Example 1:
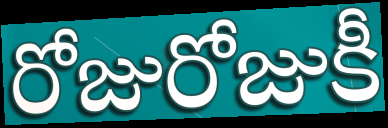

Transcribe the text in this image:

రోజురోజుకీ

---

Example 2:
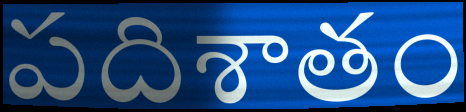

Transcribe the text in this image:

పదిశాతం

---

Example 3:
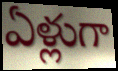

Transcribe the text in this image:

ఏళ్లుగా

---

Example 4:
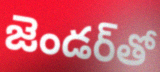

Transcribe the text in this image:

జెండర్‌తో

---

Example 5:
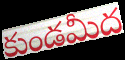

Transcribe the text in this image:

కుండమీద